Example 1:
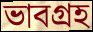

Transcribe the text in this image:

ভাবগ্রহ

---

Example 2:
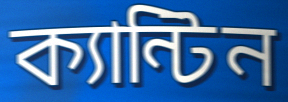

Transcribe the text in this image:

ক্যান্টিন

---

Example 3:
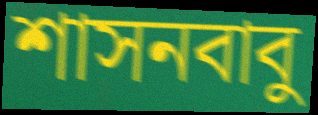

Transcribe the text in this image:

শাসনবাবু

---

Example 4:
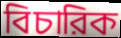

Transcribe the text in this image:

বিচারিক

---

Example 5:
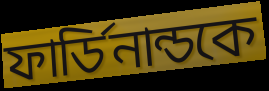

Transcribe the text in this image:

ফার্ডিনান্ডকে